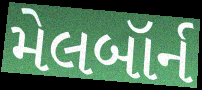
મેલબૉર્ન